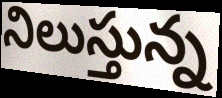
నిలుస్తున్న